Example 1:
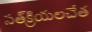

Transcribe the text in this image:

సత్‌క్రియలచేత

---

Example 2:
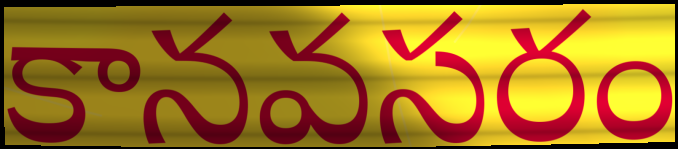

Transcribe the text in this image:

కానవసరం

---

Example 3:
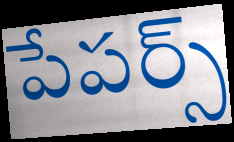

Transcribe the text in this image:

పేపర్స్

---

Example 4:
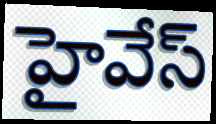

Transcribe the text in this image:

హైవేస్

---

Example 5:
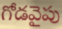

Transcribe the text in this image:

గోడవైపు